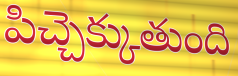
పిచ్చెక్కుతుంది